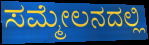
ಸಮ್ಮೇಲನದಲ್ಲಿ